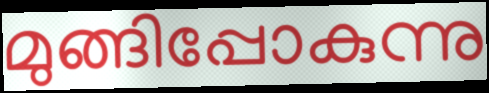
മുങ്ങിപ്പോകുന്നു